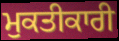
ਮੁਕਤੀਕਾਰੀ